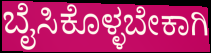
ಬೈಸಿಕೊಳ್ಳಬೇಕಾಗಿ